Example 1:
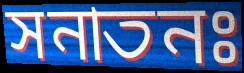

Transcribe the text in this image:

সনাতনঃ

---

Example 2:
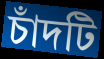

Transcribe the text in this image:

চাঁদটি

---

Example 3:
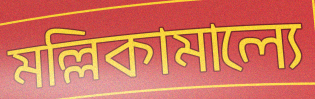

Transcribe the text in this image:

মল্লিকামাল্যে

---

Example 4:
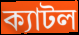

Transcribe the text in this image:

ক্যাটল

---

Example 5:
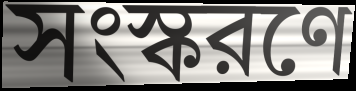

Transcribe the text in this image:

সংস্করণে